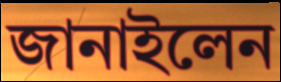
জানাইলেন